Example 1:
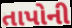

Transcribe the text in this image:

તાપોની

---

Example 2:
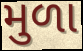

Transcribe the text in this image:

મુળા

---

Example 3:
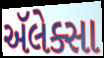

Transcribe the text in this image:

ઍલેક્સા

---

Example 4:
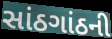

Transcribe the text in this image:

સાંઠગાંઠની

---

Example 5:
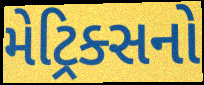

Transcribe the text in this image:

મેટ્રિક્સનો